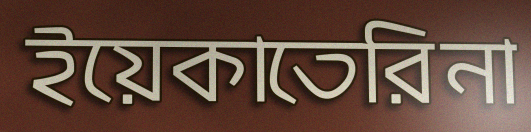
ইয়েকাতেরিনা